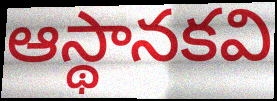
ఆస్థానకవి